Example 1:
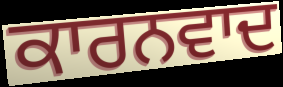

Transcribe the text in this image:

ਕਾਰਨਵਾਦ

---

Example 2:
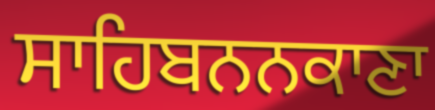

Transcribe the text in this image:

ਸਾਹਿਬਨਨਕਾਣਾ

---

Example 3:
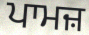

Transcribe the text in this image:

ਪਾਮਜ਼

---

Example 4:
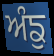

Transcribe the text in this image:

ਅੰਙੁ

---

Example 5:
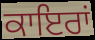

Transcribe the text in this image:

ਕਾਇਰਾਂ